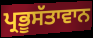
ਪ੍ਰਭੂਸੱਤਾਵਾਨ